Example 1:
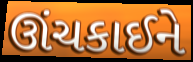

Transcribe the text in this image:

ઊંચકાઈને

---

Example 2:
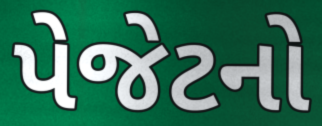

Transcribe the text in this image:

પેજેટનો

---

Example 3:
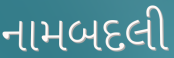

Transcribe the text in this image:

નામબદલી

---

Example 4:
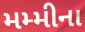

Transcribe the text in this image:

મમ્મીના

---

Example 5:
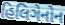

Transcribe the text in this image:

હિલિગેનોન